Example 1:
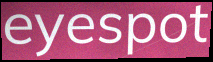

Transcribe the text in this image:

eyespot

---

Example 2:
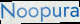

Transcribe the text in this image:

Noopura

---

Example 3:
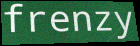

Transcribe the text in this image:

frenzy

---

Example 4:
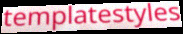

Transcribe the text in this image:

templatestyles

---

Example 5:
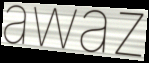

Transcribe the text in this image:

awaz